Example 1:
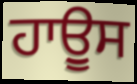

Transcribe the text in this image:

ਹਾਊੁਸ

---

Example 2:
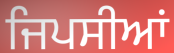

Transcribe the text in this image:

ਜਿਪਸੀਆਂ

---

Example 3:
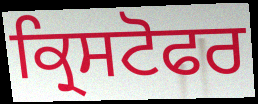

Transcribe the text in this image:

ਕ੍ਰਿਸਟੋਫਰ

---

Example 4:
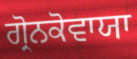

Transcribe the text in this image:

ਗ੍ਰੋਨਕੋਵਾਯਾ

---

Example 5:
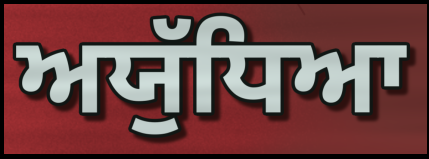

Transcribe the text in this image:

ਅਯੁੱਧਿਆ